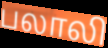
பலாலி